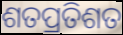
ଶତପ୍ରତିଶତ